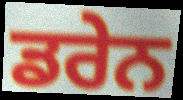
ਡਰੇਨ